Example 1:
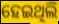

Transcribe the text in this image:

ହେଇଥିଲି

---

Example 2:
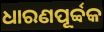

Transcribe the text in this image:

ଧାରଣପୂର୍ବ୍ବକ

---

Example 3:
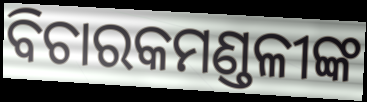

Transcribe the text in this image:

ବିଚାରକମଣ୍ଡଳୀଙ୍କ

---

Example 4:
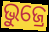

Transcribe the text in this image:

ଭୁଜ୍ରେ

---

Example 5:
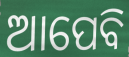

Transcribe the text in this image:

ଆପେବି